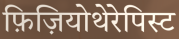
फ़िज़ियोथेरेपिस्ट